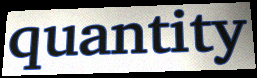
quantity